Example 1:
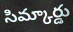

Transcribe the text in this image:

సిమ్కార్డు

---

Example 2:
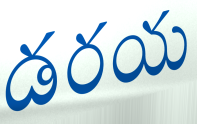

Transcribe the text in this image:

డరయ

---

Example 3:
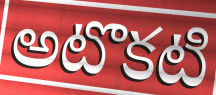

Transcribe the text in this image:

అటొకటి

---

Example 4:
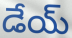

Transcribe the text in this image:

డేయ్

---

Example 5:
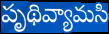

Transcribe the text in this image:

పృథివ్యామసి